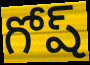
గోష్